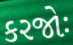
કરજોઃ